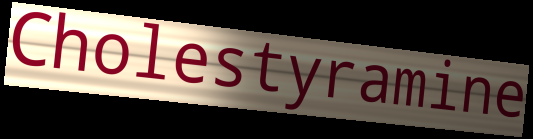
Cholestyramine